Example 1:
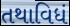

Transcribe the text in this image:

તથાવિધં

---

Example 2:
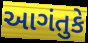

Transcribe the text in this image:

આગંતુકે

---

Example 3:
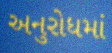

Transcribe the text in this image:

અનુરોધમાં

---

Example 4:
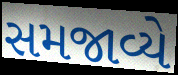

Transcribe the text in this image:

સમજાવ્યે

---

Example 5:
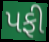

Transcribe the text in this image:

પફી